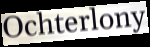
Ochterlony